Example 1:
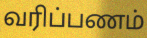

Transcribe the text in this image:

வரிப்பணம்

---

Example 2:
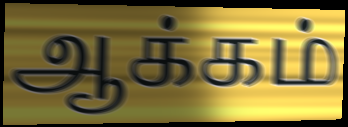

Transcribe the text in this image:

ஆக்கம்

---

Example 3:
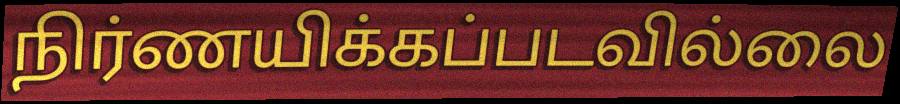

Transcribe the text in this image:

நிர்ணயிக்கப்படவில்லை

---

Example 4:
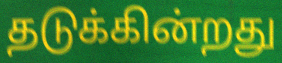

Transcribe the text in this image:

தடுக்கின்றது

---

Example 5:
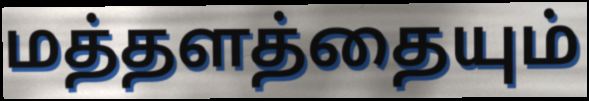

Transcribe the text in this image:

மத்தளத்தையும்